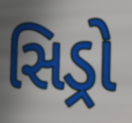
સિડ્રો